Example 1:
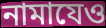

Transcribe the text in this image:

নামাযেও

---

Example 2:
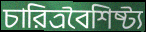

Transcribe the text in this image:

চারিত্রবৈশিষ্ট্য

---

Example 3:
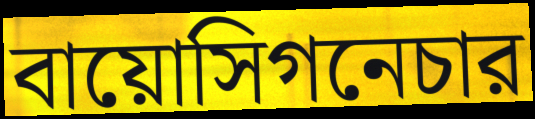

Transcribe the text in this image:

বায়োসিগনেচার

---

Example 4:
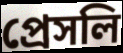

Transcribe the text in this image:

প্রেসলি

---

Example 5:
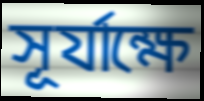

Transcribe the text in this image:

সূর্যাক্ষে